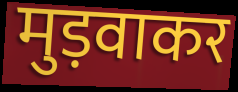
मुड़वाकर